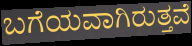
ಬಗೆಯವಾಗಿರುತ್ತವೆ